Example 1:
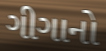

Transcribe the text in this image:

ગીગાનો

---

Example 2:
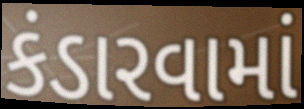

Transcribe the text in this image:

કંડારવામાં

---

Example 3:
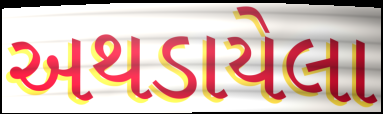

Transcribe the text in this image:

અથડાયેલા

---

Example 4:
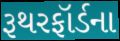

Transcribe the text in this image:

રૂથરફૉર્ડના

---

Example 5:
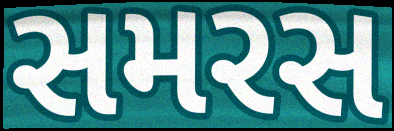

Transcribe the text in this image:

સમરસ